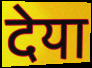
देया